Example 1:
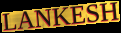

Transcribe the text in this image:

LANKESH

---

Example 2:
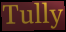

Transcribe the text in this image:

Tully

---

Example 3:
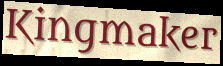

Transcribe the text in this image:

Kingmaker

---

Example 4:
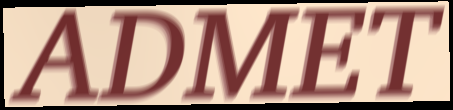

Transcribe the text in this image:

ADMET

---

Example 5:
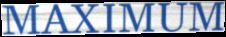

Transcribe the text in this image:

MAXIMUM